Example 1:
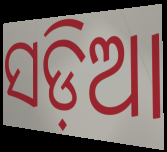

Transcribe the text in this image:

ସଡ଼ିଆ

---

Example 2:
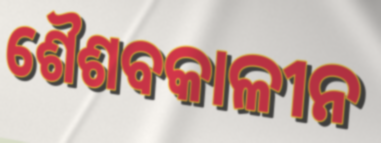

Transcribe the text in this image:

ଶୈଶବକାଳୀନ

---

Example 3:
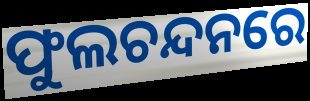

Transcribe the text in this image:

ଫୁଲଚନ୍ଦନରେ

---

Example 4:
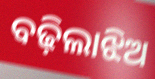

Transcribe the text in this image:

ବଢ଼ିଲାଝିଅ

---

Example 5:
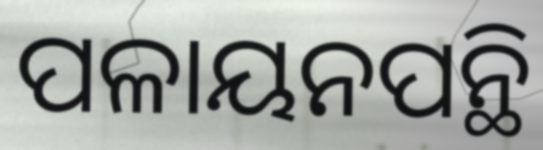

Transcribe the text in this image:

ପଳାୟନପନ୍ଥି